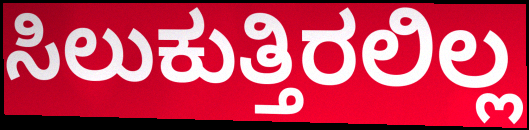
ಸಿಲುಕುತ್ತಿರಲಿಲ್ಲ